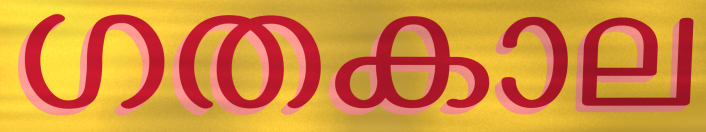
ഗതകാല